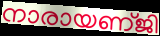
നാരായണ്ജി